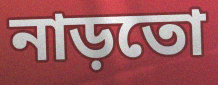
নাড়তো